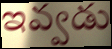
ఇవ్వడు